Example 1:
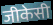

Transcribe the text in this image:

जीकेसी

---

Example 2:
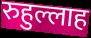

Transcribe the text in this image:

रुहुल्लाह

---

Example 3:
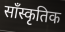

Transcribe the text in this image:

साँस्कृतिक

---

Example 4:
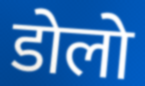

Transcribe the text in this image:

डोलो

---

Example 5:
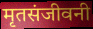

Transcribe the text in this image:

मृतसंजीवनी